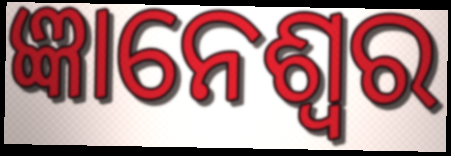
ଜ୍ଞାନେଶ୍ୱର